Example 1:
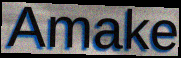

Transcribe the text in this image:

Amake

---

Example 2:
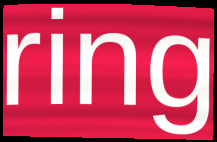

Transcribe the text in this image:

ring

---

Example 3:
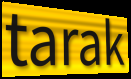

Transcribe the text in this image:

tarak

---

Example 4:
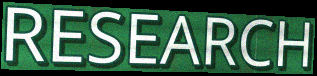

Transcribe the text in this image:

RESEARCH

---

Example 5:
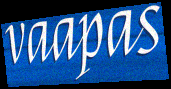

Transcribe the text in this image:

vaapas